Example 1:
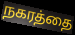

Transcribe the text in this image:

நகரத்தை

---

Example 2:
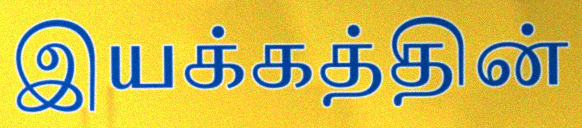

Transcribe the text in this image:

இயக்கத்தின்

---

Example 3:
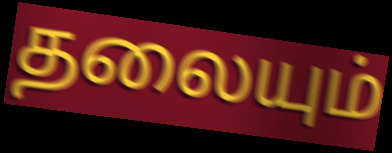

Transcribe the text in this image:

தலையும்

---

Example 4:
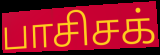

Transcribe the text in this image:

பாசிசக்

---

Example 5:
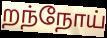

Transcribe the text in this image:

றந்நோய்